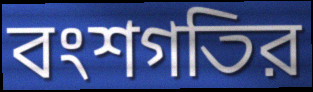
বংশগতির